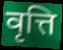
वृत्ति